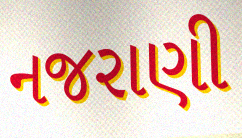
નજરાણી